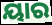
ୟାର